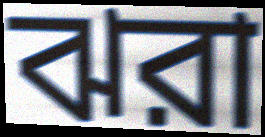
ঝরা